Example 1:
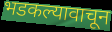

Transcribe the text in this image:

भडकल्यावाचून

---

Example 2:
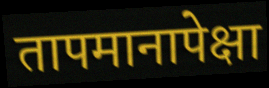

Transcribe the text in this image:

तापमानापेक्षा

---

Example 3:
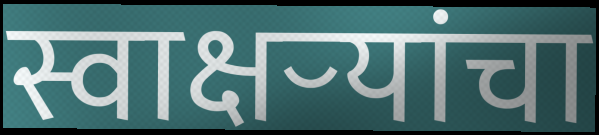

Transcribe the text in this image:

स्वाक्षऱ्यांचा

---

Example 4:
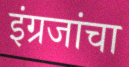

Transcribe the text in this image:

इंग्रजांचा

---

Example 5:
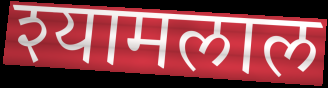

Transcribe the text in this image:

श्यामलाल